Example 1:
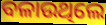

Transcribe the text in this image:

ବଳାଉଥିଲେ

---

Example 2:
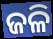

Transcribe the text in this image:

ଜଳି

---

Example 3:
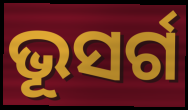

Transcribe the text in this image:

ଭୂସର୍ଗ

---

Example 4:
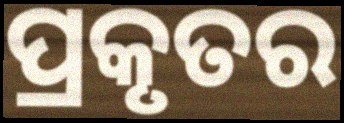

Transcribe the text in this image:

ପ୍ରକୃତର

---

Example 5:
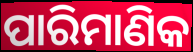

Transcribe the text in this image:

ପାରିମାଣିକ